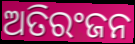
ଅତିରଂଜନ